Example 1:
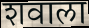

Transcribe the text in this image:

शवाला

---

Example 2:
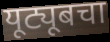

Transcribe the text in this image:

यूट्यूबचा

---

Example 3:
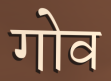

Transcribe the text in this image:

गोव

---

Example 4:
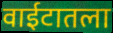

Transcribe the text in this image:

वाईटातला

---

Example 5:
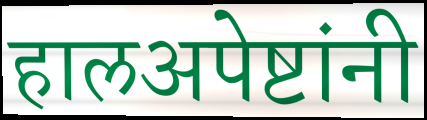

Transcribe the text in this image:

हालअपेष्टांनी